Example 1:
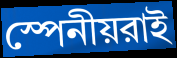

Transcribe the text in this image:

স্পেনীয়রাই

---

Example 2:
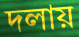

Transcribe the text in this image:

দলায়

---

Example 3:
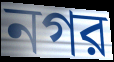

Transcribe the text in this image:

নগর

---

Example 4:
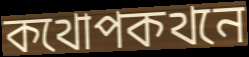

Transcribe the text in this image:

কথোপকথনে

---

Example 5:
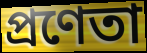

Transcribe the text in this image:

প্রণেতা